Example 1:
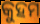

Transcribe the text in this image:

କୁହମ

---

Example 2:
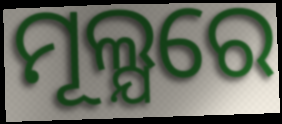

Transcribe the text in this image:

ମୂଲ୍ଯରେ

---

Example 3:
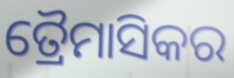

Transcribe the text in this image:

ତ୍ରୈମାସିକର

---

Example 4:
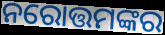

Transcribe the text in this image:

ନରୋତ୍ତମଙ୍କର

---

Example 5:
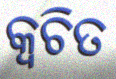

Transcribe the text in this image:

କ୍ୱଚିତ